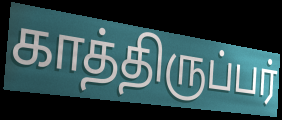
காத்திருப்பர்